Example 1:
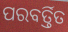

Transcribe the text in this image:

ପରବର୍ତ୍ତିତ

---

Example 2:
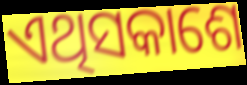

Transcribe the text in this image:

ଏଥିସକାଶେ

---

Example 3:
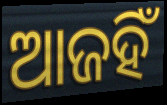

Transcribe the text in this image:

ଆଜହିଁ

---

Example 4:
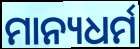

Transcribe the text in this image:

ମାନ୍ୟଧର୍ମ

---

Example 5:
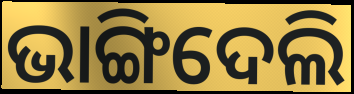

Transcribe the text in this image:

ଭାଙ୍ଗିଦେଲି